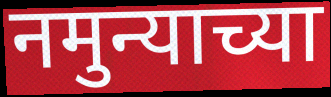
नमुन्याच्या